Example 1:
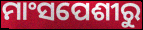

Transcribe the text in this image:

ମାଂସପେଶୀରୁ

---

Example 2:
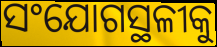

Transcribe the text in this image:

ସଂଯୋଗସ୍ଥଳୀକୁ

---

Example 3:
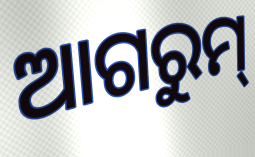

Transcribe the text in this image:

ଆଗରୁମ୍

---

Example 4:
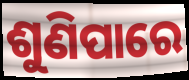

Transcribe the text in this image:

ଶୁଣିପାରେ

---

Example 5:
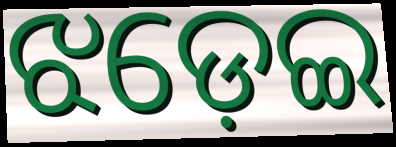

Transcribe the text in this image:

ଝଡ଼େଇ